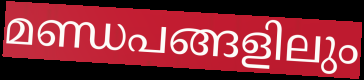
മണ്ഡപങ്ങളിലും